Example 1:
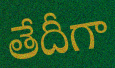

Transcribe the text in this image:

తేదీగా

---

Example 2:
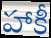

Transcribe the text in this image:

హాకీ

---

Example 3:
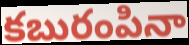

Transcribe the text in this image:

కబురంపినా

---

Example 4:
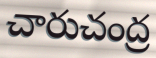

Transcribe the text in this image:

చారుచంద్ర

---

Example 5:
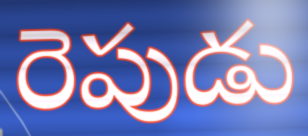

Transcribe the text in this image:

రెపుడు